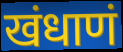
खंधाणं